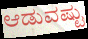
ಆಡುವಷ್ಟು